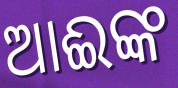
ଆଈଙ୍କ